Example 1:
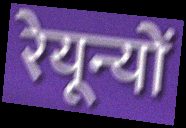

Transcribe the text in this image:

रेयून्यों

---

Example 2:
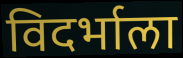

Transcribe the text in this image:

विदर्भाला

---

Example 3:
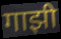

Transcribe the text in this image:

गाझी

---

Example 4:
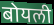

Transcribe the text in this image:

बोयली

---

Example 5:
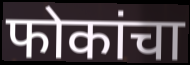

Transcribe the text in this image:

फोकांचा